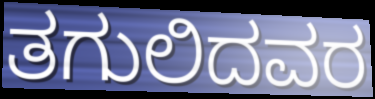
ತಗುಲಿದವರ